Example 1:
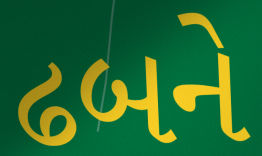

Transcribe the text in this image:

ઢબને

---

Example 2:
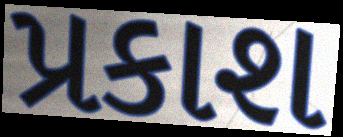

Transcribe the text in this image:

પ્રકાશ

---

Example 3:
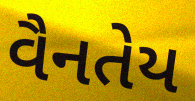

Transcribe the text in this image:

વૈનતેય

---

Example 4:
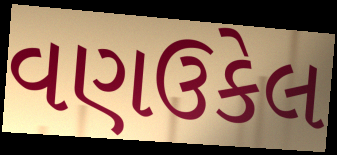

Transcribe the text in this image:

વણઉકેલ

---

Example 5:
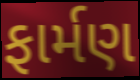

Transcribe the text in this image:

ફાર્મણ